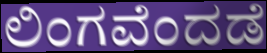
ಲಿಂಗವೆಂದಡೆ